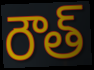
రౌత్